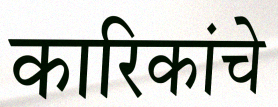
कारिकांचे